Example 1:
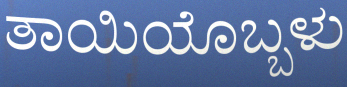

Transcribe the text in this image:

ತಾಯಿಯೊಬ್ಬಳು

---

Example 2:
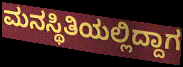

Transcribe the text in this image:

ಮನಸ್ಥಿತಿಯಲ್ಲಿದ್ದಾಗ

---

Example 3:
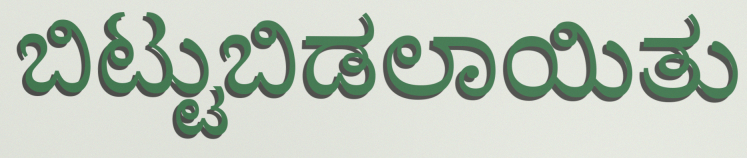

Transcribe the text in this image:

ಬಿಟ್ಟುಬಿಡಲಾಯಿತು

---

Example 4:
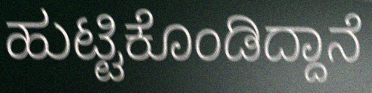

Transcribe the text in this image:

ಹುಟ್ಟಿಕೊಂಡಿದ್ದಾನೆ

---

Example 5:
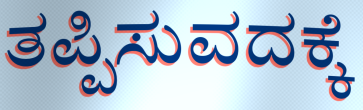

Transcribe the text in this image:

ತಪ್ಪಿಸುವದಕ್ಕೆ